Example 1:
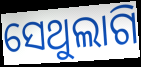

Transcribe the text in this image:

ସେଥୁଲାଗି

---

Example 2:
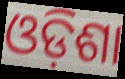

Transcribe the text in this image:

ଓଡ଼ିଶା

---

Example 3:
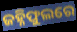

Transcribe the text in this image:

ଜହ୍ନିଫୁଲରେ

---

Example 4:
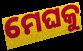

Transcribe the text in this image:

ମେଘକୁ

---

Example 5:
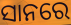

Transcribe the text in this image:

ସାନରେ